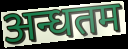
अन्धतम